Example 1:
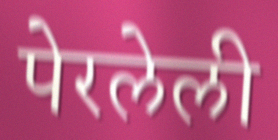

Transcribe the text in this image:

पेरलेली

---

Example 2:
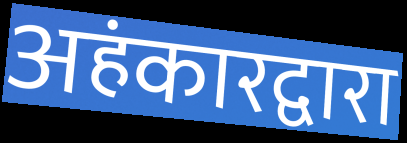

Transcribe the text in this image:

अहंकारद्वारा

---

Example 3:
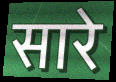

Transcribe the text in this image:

सारे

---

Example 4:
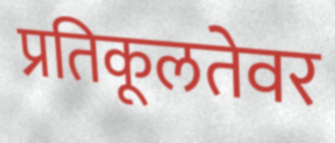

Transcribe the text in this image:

प्रतिकूलतेवर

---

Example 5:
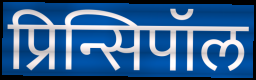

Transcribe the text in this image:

प्रिन्सिपॉल